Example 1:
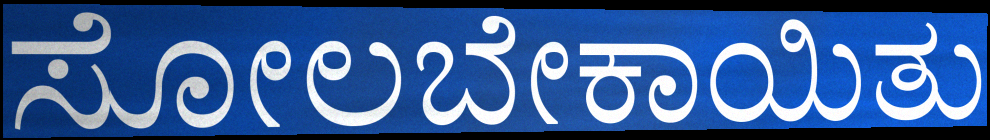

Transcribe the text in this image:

ಸೋಲಬೇಕಾಯಿತು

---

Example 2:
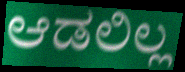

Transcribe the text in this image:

ಆಡಲಿಲ್ಲ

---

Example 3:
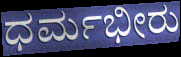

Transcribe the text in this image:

ಧರ್ಮಭೀರು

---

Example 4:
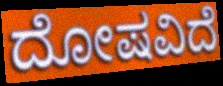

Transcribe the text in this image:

ದೋಷವಿದೆ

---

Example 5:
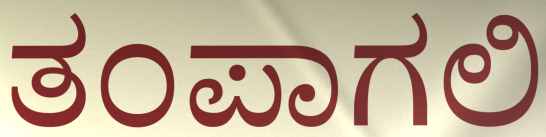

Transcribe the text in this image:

ತಂಪಾಗಲಿ